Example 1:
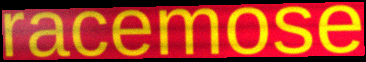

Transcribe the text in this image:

racemose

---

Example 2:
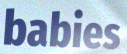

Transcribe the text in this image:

babies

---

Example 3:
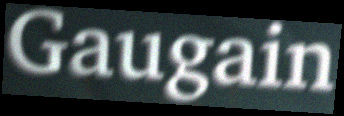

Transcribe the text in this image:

Gaugain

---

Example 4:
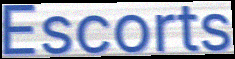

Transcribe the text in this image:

Escorts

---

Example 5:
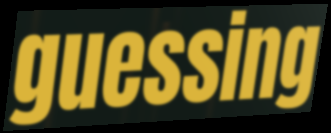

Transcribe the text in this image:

guessing